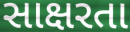
સાક્ષરતા